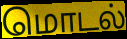
மொடல்